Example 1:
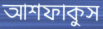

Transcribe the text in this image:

আশফাকুস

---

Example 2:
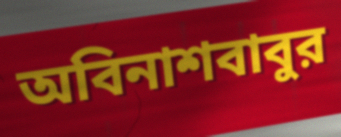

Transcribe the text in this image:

অবিনাশবাবুর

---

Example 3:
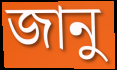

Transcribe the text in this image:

জানু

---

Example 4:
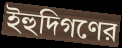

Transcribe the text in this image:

ইহুদিগণের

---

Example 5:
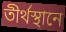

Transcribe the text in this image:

তীর্থস্থানে